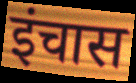
इंचास